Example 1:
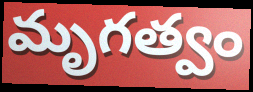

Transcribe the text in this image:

మృగత్వం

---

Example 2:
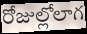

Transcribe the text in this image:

రోజుల్లోలాగ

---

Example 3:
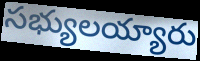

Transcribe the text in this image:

సభ్యులయ్యారు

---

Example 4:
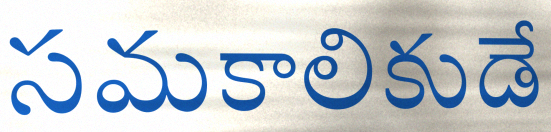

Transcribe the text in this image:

సమకాలికుడే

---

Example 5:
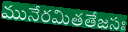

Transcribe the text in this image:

మునేరమితతేజసః